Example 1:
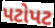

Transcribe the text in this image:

પટોપટ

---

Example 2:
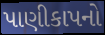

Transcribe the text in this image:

પાણીકાપનો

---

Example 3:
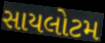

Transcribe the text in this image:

સાયલોટમ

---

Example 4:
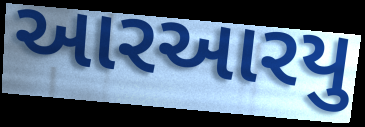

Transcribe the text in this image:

આરઆરયુ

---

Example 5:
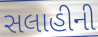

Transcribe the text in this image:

સલાહીની